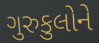
ગુરુકુલોને